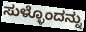
ಸುಳ್ಳೊಂದನ್ನು